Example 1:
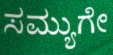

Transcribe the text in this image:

ಸಮ್ಯುಗೇ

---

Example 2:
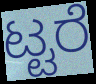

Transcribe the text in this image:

ಟ್ಟರೆ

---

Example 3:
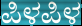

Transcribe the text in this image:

ಪಿಳಪಿಳ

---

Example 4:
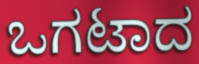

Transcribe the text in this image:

ಒಗಟಾದ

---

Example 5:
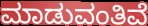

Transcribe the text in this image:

ಮಾಡುವಂತಿವೆ